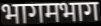
भागमभाग